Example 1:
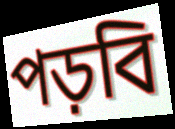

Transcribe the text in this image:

পড়বি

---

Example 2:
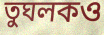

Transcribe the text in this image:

তুঘলকও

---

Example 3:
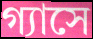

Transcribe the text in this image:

গ্যাসে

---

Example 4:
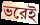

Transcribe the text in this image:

ভরেই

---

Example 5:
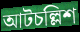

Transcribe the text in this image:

আটচল্লিশ